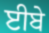
ਈਬੇ